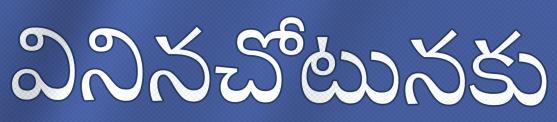
వినినచోటునకు